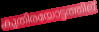
കുതിരയോട്ടത്തില്